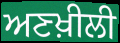
ਅਣਖ਼ੀਲੀ